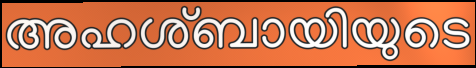
അഹശ്ബായിയുടെ